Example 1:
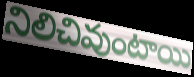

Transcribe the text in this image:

నిలిచివుంటాయి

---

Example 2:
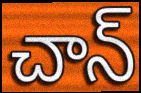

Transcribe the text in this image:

చాన్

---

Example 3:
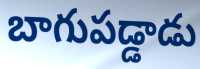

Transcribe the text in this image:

బాగుపడ్డాడు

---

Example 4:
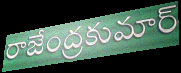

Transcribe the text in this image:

రాజేంద్రకుమార్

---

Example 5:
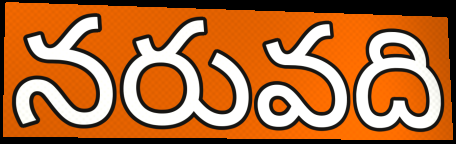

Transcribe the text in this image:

నరువది